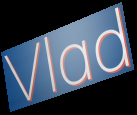
Vlad